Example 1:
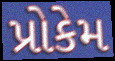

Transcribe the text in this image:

પ્રોકેમ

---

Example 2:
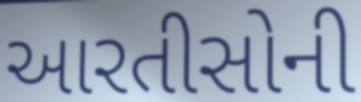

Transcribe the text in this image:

આરતીસોની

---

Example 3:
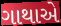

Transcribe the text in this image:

ગાથાએ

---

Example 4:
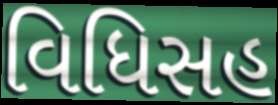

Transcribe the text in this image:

વિધિસહ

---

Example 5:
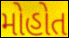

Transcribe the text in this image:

મોહોત